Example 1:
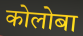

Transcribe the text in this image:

कोलोबा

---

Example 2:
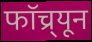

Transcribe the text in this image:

फॉच्र्यून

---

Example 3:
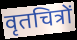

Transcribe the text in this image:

वृतचित्रों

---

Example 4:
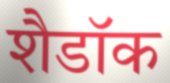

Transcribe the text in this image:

शैडॉक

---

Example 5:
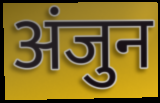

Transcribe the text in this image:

अंजुन